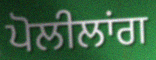
ਪੋਲੀਲਾਂਗ